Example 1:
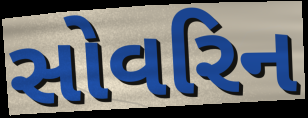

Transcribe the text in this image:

સોવરિન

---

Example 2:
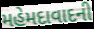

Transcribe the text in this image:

મહેમદાવાદની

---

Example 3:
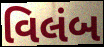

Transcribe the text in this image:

વિલંબ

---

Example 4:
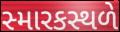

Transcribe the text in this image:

સ્મારકસ્થળે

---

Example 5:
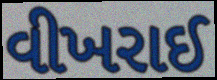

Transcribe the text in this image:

વીખરાઈ